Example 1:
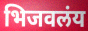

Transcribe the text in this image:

भिजवलंय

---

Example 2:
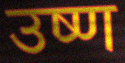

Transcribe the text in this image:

उष्ण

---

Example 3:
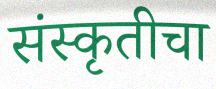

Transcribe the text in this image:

संस्कृतीचा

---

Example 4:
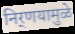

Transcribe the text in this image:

निर्णयामुळे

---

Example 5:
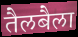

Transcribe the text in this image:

तैलबैला